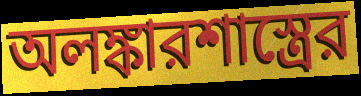
অলঙ্কারশাস্ত্রের